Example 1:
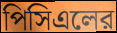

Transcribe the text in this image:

পিসিএলের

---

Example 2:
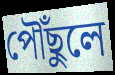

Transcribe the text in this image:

পৌঁছুলে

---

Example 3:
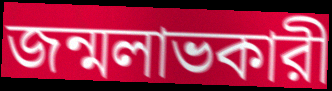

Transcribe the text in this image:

জন্মলাভকারী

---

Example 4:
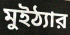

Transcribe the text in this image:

মুইঠ্যার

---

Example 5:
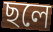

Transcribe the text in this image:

ছলে